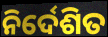
ନିର୍ଦେଶିତ